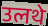
उलथे